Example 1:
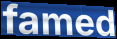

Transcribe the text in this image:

famed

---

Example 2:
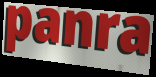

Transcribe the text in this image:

panra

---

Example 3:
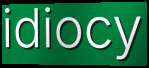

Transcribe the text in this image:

idiocy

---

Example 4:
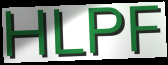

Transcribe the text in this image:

HLPF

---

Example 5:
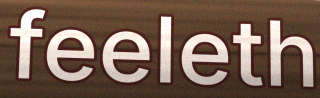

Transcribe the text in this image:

feeleth